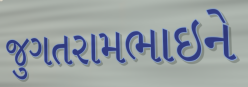
જુગતરામભાઇને